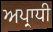
ਅਪ੍ਰਾਧੀ